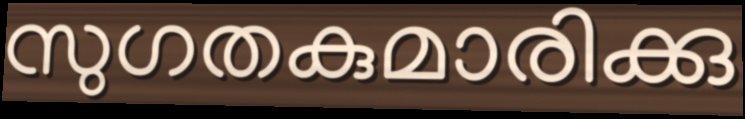
സുഗതകുമാരിക്കു